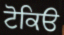
ਟੋਕਿੳ